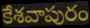
కేశవాపురం